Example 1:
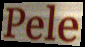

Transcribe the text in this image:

Pele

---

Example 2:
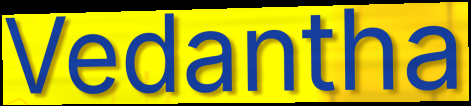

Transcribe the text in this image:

Vedantha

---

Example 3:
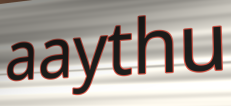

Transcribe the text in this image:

aaythu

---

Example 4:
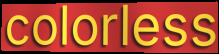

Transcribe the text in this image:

colorless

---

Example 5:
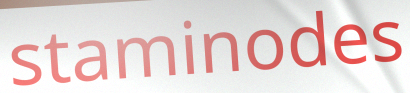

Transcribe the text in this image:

staminodes